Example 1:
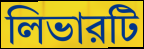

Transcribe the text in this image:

লিভারটি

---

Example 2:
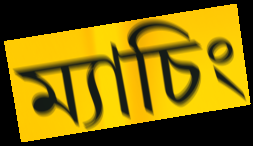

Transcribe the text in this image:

ম্যাচিং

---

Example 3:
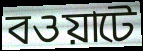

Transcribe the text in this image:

বওয়াটে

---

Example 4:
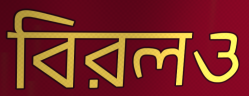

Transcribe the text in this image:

বিরলও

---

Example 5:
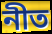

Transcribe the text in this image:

নীত